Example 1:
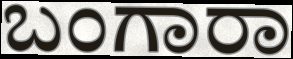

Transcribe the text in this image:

ಬಂಗಾರಾ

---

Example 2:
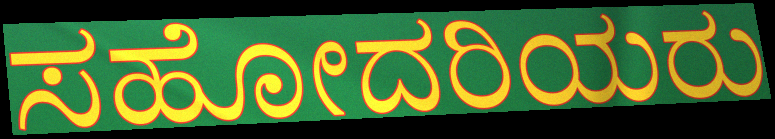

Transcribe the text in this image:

ಸಹೋದರಿಯರು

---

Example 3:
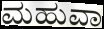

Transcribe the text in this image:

ಮಹುವಾ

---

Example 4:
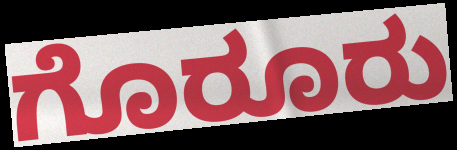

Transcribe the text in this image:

ಗೊರೂರು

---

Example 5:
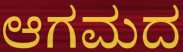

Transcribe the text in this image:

ಆಗಮದ